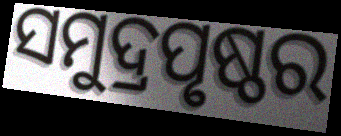
ସମୁଦ୍ରପୃଷ୍ଠର